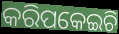
କରିପକେଇଚି